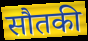
सौतकी